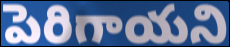
పెరిగాయని